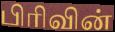
பிரிவின்